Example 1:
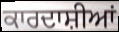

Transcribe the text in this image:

ਕਾਰਦਾਸ਼ੀਆਂ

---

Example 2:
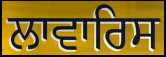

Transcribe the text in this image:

ਲਾਵਾਰਿਸ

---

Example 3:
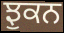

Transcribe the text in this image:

ਝੁਕਨ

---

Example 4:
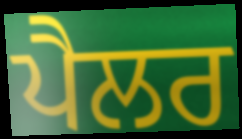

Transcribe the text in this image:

ਪੈਲਰ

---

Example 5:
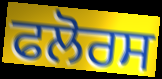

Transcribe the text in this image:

ਫਲੋਰਸ